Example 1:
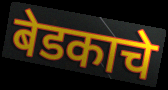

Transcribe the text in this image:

बेडकाचे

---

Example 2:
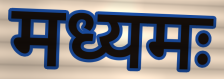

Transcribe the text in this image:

मध्यमः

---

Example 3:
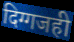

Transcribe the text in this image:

दिग्गजही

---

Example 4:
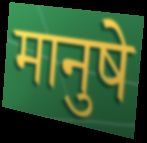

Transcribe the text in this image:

मानुषे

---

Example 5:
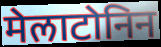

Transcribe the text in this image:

मेलाटोनिन